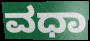
ವಧಾ